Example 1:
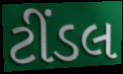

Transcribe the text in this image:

ટીંડલ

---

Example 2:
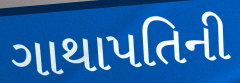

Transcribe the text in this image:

ગાથાપતિની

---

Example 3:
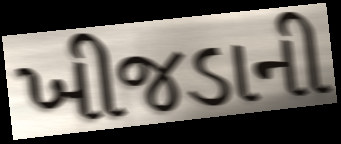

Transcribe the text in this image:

ખીજડાની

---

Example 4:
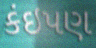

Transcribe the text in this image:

કંઇપણ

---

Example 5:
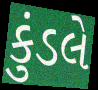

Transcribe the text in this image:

કુંડલે